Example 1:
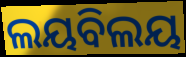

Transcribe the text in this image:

ଲୟବିଲୟ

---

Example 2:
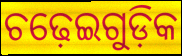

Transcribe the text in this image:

ଚଢ଼େଇଗୁଡ଼ିକ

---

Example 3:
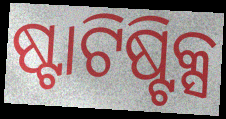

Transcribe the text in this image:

ଷ୍ଟାଟିଷ୍ଟିକ୍ସ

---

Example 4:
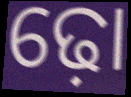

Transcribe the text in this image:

ଢ଼ୋ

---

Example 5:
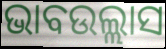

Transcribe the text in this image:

ଭାବଉଲ୍ଲାସ